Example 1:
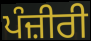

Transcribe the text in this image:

ਪੰਜ਼ੀਰੀ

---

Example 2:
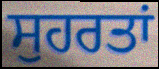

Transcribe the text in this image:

ਸੁਹਰਤਾਂ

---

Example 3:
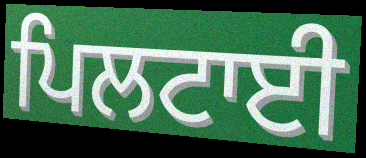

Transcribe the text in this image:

ਪਿਲਟਾਈ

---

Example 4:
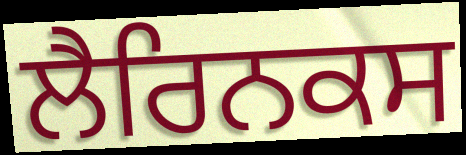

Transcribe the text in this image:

ਲੈਰਿਨਕਸ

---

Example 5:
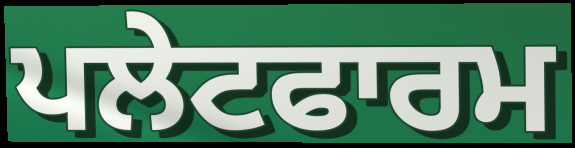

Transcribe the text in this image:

ਪਲੇਟਫਾਰਮ